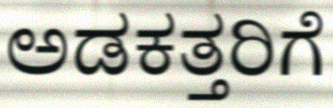
ಅಡಕತ್ತರಿಗೆ